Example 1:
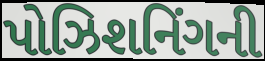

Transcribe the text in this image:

પોઝિશનિંગની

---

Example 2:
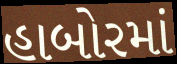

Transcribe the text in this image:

હાબોરમાં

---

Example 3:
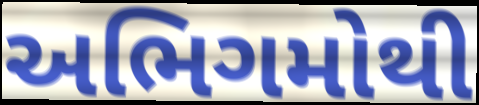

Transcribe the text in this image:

અભિગમોથી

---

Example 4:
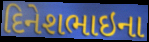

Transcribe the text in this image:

દિનેશભાઇના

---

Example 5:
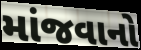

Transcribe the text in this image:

માંજવાનો